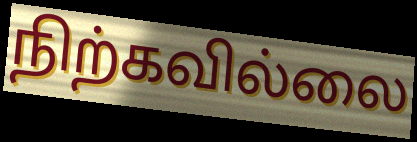
நிற்கவில்லை